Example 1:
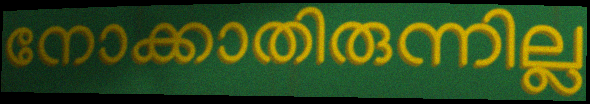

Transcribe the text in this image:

നോക്കാതിരുന്നില്ല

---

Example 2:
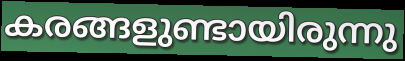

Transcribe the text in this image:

കരങ്ങളുണ്ടായിരുന്നു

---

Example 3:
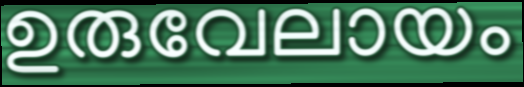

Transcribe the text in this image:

ഉരുവേലായം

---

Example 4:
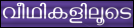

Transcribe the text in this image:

വീഥികളിലൂടെ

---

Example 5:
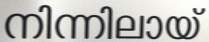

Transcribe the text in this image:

നിന്നിലായ്